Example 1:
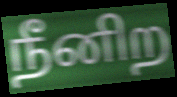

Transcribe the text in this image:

நீனிற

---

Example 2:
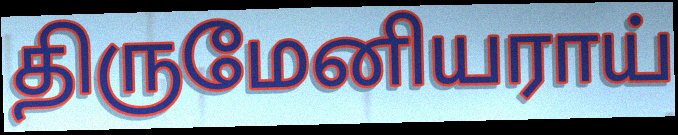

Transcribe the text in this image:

திருமேனியராய்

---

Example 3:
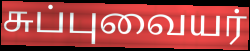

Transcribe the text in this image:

சுப்புவையர்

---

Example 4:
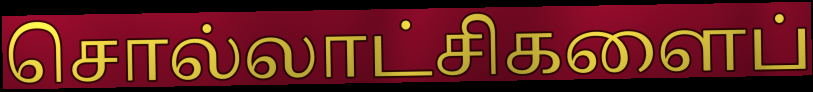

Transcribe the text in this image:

சொல்லாட்சிகளைப்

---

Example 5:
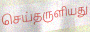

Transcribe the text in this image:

செய்தருளியது